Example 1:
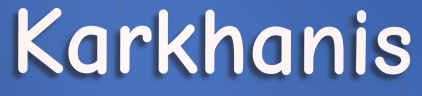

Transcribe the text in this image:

Karkhanis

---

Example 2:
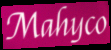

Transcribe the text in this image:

Mahyco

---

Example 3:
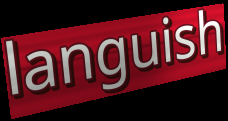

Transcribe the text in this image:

languish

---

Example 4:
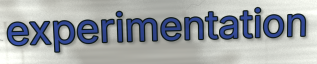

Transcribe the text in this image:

experimentation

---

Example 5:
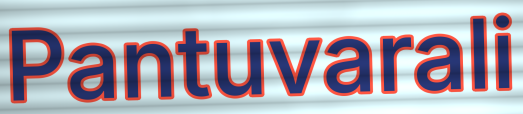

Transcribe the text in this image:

Pantuvarali